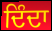
ਦਿੰਦਾ